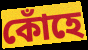
কোঁহে